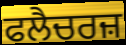
ਫਲੈਚਰਜ਼